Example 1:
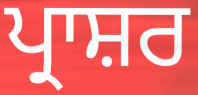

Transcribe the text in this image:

ਪ੍ਰਾਸ਼ਰ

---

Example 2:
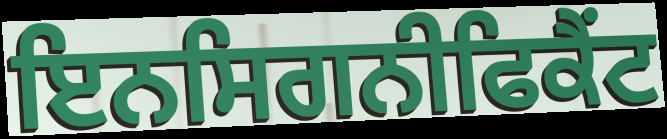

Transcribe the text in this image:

ਇਨਸਿਗਨੀਫਿਕੈਂਟ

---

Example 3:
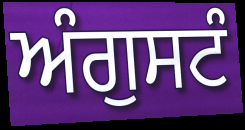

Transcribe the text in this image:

ਅੰਗੁਸਟੰ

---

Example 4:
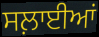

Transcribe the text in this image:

ਸਲ਼ਾਈਆਂ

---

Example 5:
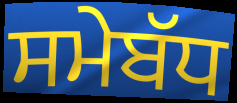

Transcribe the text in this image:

ਸਮੇਬੱਧ